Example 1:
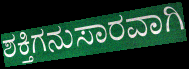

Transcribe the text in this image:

ಶಕ್ತಿಗನುಸಾರವಾಗಿ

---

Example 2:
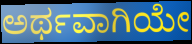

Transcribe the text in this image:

ಅರ್ಥವಾಗಿಯೇ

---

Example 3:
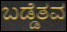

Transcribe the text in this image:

ಬಡ್ಡೆತವ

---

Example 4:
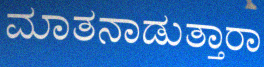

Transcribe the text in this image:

ಮಾತನಾಡುತ್ತಾರಾ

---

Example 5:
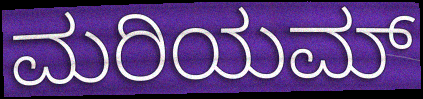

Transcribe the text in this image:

ಮರಿಯಮ್